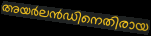
അയർലൻഡിനെതിരായ